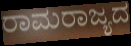
ರಾಮರಾಜ್ಯದ